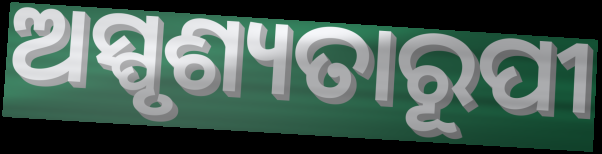
ଅସ୍ପୃଶ୍ୟତାରୂପୀ